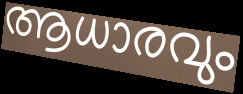
ആധാരവും